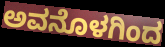
ಅವನೊಳಗಿಂದ